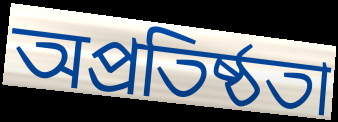
অপ্রতিষ্ঠতা